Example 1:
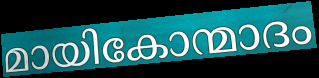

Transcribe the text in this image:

മായികോന്മാദം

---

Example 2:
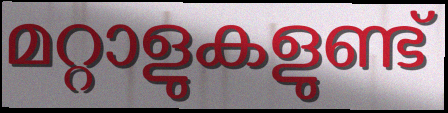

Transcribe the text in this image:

മറ്റാളുകളുണ്ട്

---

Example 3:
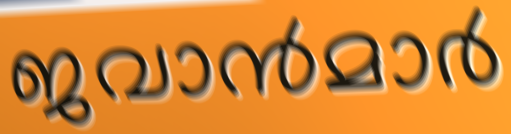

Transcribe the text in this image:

ജവാൻമാർ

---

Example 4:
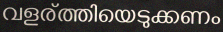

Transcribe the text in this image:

വളര്ത്തിയെടുക്കണം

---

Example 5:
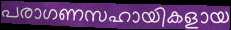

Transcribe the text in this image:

പരാഗണസഹായികളായ